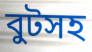
বুটসহ